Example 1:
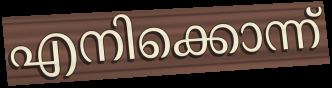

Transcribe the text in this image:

എനിക്കൊന്ന്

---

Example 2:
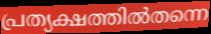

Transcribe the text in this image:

പ്രത്യക്ഷത്തിൽതന്നെ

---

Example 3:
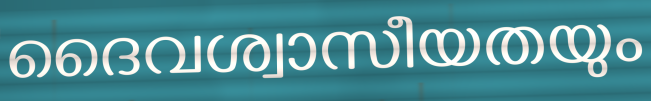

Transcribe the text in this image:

ദൈവശ്വാസീയതയും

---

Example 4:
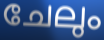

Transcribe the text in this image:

ചേലും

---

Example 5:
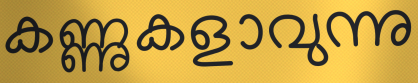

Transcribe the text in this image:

കണ്ണുകളാവുന്നു